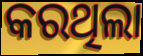
କରଥିଲା